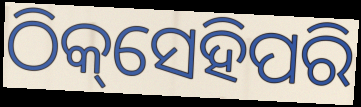
ଠିକ୍‌ସେହିପରି